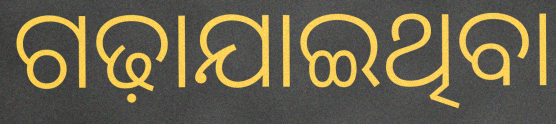
ଗଢ଼ାଯାଇଥିବା